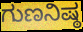
ಗುಣನಿಷ್ಠ